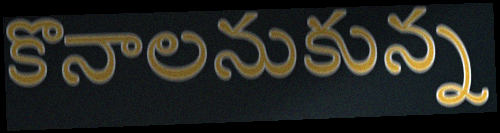
కొనాలనుకున్న